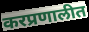
करप्रणालीत